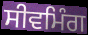
ਸੀਵਮਿੰਗ